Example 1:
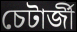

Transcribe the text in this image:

চেটাৰ্জী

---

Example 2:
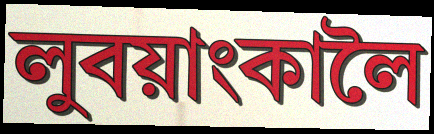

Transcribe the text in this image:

লুবয়াংকালৈ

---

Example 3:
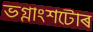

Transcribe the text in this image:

ভগ্নাংশটোৰ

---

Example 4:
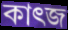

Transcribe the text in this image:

কাৎজ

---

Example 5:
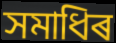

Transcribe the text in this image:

সমাধিৰ